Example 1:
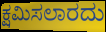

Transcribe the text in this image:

ಕ್ಷಮಿಸಲಾರದು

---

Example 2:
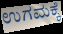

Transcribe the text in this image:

ಉಗಮಕ್ಕೆ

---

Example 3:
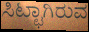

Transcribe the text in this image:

ಸಿಟ್ಟಾಗಿರುವ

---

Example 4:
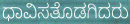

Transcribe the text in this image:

ಧಾವಿಸತೊಡಗಿದರು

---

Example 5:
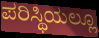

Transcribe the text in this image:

ಪರಿಸ್ಥಿಯಲ್ಲೂ